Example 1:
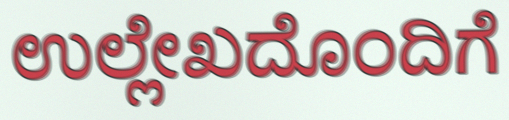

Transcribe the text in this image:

ಉಲ್ಲೇಖದೊಂದಿಗೆ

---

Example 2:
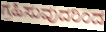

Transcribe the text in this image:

ಗ್ರಹಿಸುವುದರಿಂದ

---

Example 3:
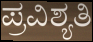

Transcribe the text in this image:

ಪ್ರವಿಶ್ಯತಿ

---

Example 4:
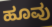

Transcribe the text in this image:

ಹೂವು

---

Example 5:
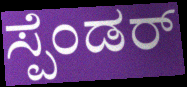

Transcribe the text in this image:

ಸ್ಪೆಂಡರ್